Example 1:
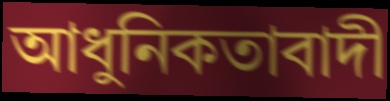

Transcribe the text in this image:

আধুনিকতাবাদী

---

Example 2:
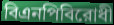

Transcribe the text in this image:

বিএনপিবিরোধী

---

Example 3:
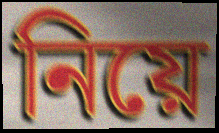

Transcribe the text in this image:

নিয়ে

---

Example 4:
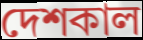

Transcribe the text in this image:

দেশকাল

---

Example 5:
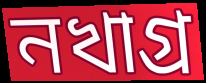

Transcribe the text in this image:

নখাগ্র